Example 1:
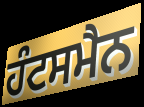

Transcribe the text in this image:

ਹੰਟਸਮੈਨ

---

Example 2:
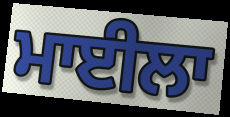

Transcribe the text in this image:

ਮਾਈਲਾ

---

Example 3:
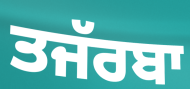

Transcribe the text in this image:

ਤਜੱਰਬਾ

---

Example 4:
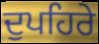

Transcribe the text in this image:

ਦੁਪਹਿਰੇ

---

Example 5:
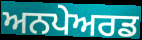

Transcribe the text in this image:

ਅਨਪੇਅਰਡ